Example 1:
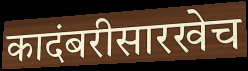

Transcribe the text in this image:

कादंबरीसारखेच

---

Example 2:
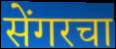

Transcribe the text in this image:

सेंगरचा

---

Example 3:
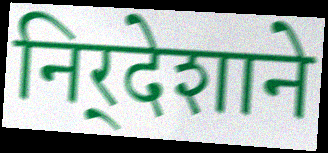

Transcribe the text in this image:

निर्देशाने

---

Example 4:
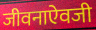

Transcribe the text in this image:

जीवनाऐवजी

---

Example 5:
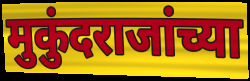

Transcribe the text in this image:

मुकुंदराजांच्या